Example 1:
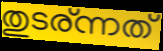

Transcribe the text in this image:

തുടര്ന്നത്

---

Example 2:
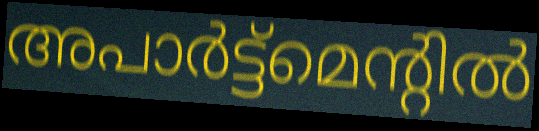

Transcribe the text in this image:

അപാർട്ട്മെന്റിൽ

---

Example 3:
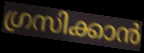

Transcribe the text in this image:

ഗ്രസിക്കാൻ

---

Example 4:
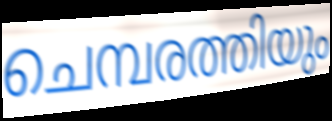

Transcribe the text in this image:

ചെമ്പരത്തിയും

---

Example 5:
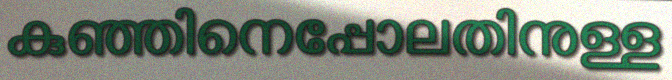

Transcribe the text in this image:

കുഞ്ഞിനെപ്പോലതിനുള്ള